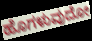
ಹೊಗಳುವುದೋ